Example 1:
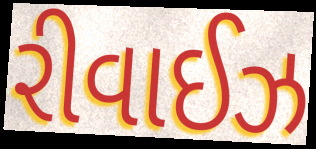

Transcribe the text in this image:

રીવાઈઝ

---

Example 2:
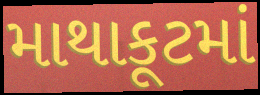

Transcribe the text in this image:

માથાકૂટમાં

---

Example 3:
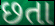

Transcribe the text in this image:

છતા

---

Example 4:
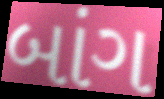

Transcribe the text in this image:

બાંગ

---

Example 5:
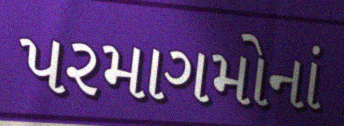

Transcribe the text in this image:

પરમાગમોનાં